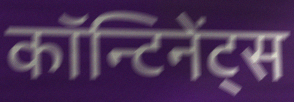
कॉन्टिनेंट्स